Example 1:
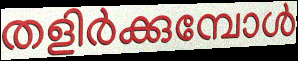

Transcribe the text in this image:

തളിർക്കുമ്പോൾ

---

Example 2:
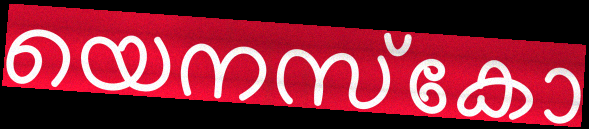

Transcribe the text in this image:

യെനസ്കോ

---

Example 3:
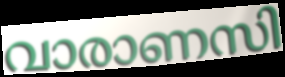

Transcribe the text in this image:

വാരാണസി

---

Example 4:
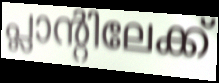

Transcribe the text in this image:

പ്ലാന്റിലേക്ക്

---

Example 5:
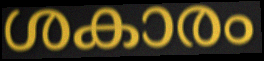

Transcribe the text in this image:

ശകാരം